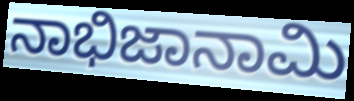
ನಾಭಿಜಾನಾಮಿ